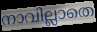
നാവില്ലാതെ